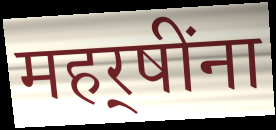
महर्षींना